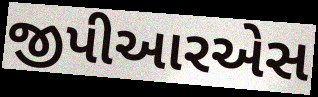
જીપીઆરએસ